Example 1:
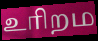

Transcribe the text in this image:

உரிறம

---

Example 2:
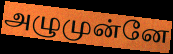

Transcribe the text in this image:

அழுமுன்னே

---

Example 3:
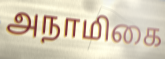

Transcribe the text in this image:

அநாமிகை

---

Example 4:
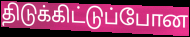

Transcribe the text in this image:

திடுக்கிட்டுப்போன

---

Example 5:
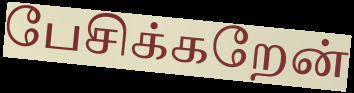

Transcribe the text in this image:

பேசிக்கறேன்